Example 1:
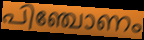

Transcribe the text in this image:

പിഞ്ചോണം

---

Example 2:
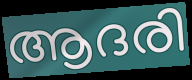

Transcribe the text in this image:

ആദരി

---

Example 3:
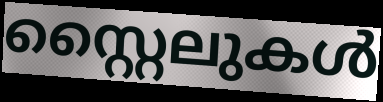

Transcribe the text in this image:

സ്റ്റൈലുകൾ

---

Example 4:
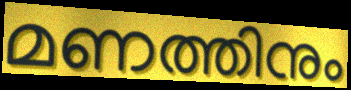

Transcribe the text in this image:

മണത്തിനും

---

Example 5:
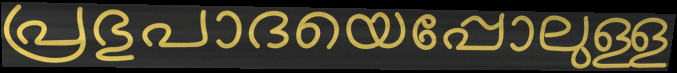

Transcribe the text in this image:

പ്രഭുപാദയെപ്പോലുള്ള